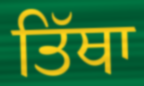
ਤਿੱਥਾ